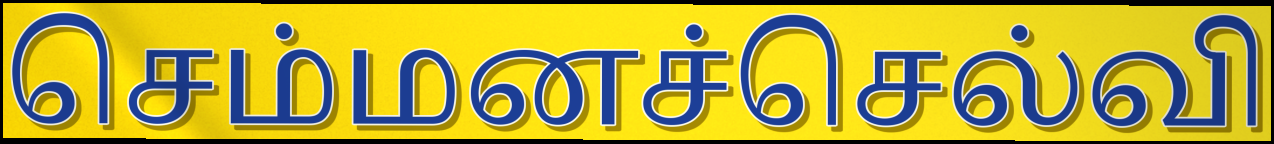
செம்மனச்செல்வி